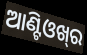
ଆଣ୍ଟିଓଖ୍‍ର